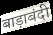
बाड़ाबंदी